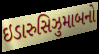
ઇડારુસિઝુમાબનો